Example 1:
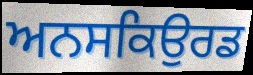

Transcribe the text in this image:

ਅਨਸਕਿਉਰਡ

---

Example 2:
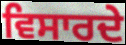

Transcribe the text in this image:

ਵਿਸਾਰਦੇ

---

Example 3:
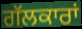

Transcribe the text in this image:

ਗੱਲਕਾਰਾਂ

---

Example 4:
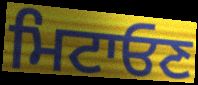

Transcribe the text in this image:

ਮਿਟਾਓਣ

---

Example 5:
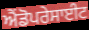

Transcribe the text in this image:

ਐਂਡੋਪਰੇਸਾਈਟ